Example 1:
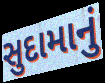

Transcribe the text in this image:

સુદામાનું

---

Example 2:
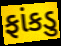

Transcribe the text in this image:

ફાંકડુ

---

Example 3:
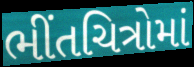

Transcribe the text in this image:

ભીંતચિત્રોમાં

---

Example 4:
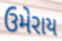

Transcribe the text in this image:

ઉમેરાય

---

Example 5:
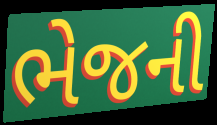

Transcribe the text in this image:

ભેજની